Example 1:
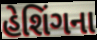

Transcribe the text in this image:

હેશિંગના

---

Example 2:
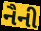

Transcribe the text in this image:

નૈની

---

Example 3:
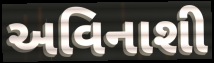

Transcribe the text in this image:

અવિનાશી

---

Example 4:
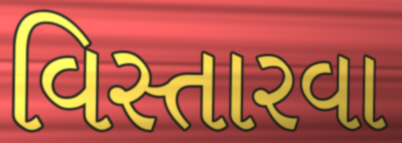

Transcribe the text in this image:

વિસ્તારવા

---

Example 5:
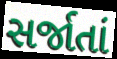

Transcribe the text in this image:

સર્જાતાં